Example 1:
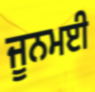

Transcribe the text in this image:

ਜੂਨਮਈ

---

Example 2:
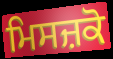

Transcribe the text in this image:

ਮਿਸਜ਼ਕੋ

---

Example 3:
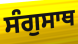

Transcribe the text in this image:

ਸੰਗੁਸਾਥ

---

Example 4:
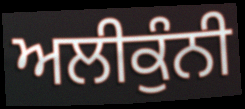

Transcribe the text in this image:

ਅਲੀਕੁੰਨੀ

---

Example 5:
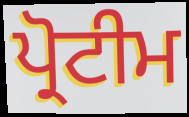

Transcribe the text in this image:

ਪ੍ਰੋਟੀਮ